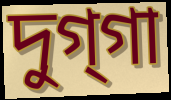
দুগ্‌গা